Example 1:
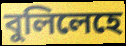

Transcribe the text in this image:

বুলিলেহে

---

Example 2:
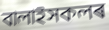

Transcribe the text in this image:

বালাইসকলৰ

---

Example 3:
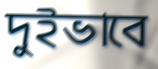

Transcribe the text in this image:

দুইভাবে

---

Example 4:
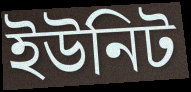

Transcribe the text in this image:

ইউনিট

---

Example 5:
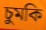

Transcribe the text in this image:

চুমকি